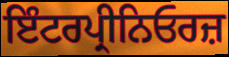
ਇੰਟਰਪ੍ਰੀਨਿਓਰਜ਼